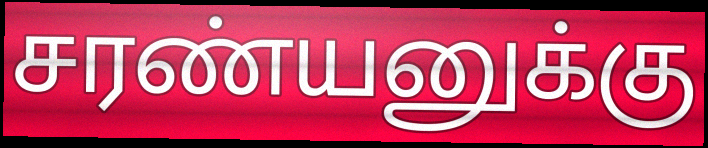
சரண்யனுக்கு